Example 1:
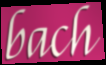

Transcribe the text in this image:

bach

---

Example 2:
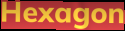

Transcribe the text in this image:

Hexagon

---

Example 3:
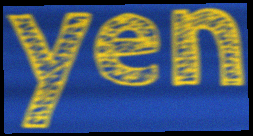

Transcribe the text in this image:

yen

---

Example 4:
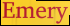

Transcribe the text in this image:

Emery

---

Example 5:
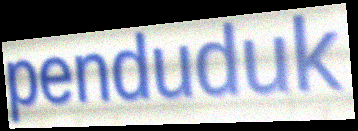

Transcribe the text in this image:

penduduk